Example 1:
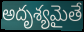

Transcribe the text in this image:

అదృశ్యమైతే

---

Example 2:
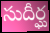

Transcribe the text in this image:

సుదీర్ఘ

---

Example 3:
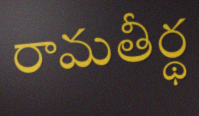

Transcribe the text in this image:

రామతీర్థ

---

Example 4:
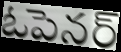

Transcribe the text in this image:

ఓపెనర్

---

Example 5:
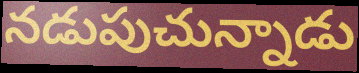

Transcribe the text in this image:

నడుపుచున్నాడు